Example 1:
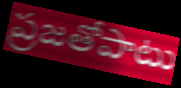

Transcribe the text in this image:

ప్రజతోపాటు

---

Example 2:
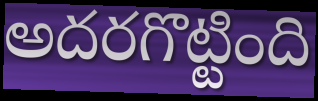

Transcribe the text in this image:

అదరగొట్టింది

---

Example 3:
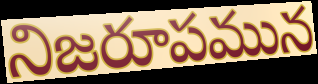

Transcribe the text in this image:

నిజరూపమున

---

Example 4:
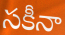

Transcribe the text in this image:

సకీనా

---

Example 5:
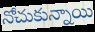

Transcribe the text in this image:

నోచుకున్నాయి